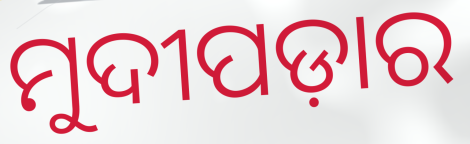
ମୁଦୀପଡ଼ାର